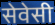
सेवेसी